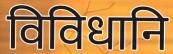
विविधानि